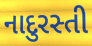
નાદુરસ્તી